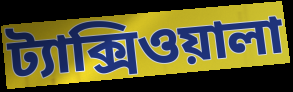
ট্যাক্সিওয়ালা